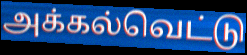
அக்கல்வெட்டு